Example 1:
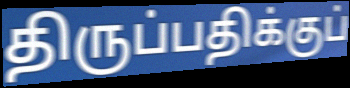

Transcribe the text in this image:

திருப்பதிக்குப்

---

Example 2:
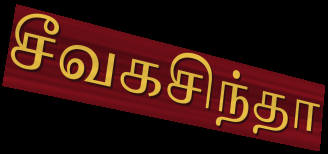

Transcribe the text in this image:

சீவகசிந்தா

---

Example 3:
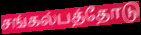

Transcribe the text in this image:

சங்கல்பத்தோடு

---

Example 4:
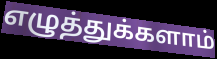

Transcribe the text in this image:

எழுத்துக்களாம்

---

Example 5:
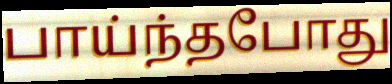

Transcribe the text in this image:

பாய்ந்தபோது